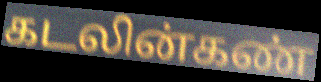
கடலின்கண்